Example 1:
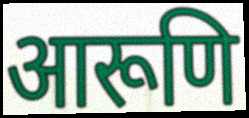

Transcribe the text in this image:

आरूणि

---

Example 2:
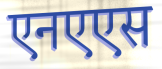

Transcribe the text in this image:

एनएएस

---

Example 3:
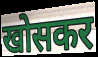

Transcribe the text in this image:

खोसकर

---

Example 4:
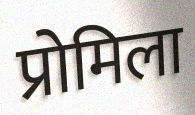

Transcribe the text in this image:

प्रोमिला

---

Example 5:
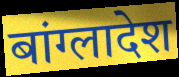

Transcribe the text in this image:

बांग्‍लादेश